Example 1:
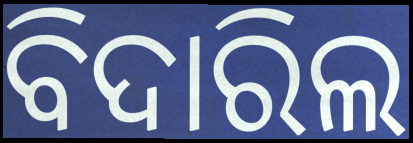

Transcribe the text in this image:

ବିଦାରିଲ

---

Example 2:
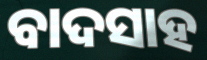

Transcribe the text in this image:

ବାଦସାହ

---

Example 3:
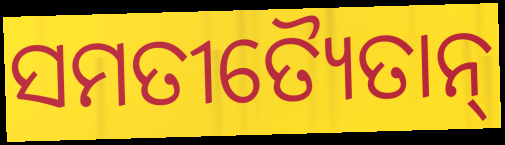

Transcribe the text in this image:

ସମତୀତ୍ୟୈତାନ୍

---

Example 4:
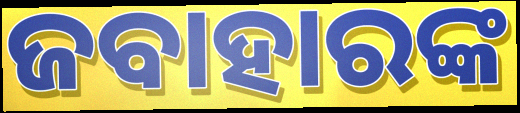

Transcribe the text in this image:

ଜବାହାରଙ୍କ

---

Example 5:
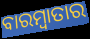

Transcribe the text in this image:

ବାରମ୍ବାତାର